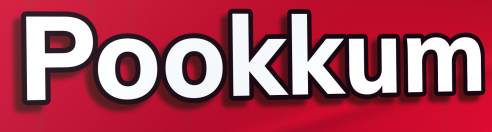
Pookkum